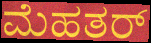
ಮೆಹತರ್